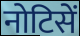
नोटिसें